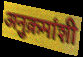
अनुक्रमांशी